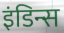
इंडिन्स